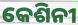
କେଶିନୀ